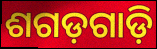
ଶଗଡ଼ଗାଡ଼ି